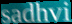
sadhvi